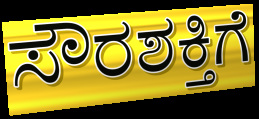
ಸೌರಶಕ್ತಿಗೆ